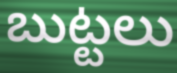
బుట్టలు